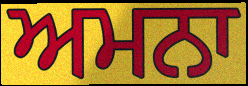
ਅਮਨਾ